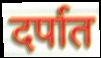
दर्पात